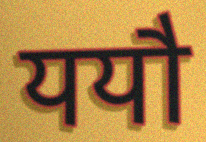
ययौ